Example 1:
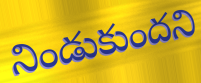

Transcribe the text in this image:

నిండుకుందని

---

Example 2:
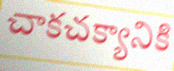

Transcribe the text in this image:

చాకచక్యానికి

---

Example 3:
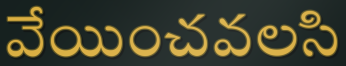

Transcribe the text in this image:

వేయించవలసి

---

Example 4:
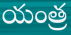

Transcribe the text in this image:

యంత్ర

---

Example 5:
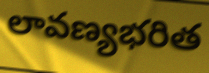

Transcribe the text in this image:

లావణ్యభరిత